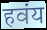
हवंय